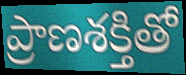
ప్రాణశక్తితో